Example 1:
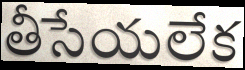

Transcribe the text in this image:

తీసేయలేక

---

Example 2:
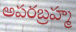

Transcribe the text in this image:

అపరబ్రహ్మ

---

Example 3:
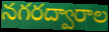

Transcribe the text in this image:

నగరద్వారాల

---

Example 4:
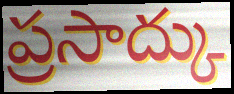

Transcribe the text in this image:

ప్రసాద్కు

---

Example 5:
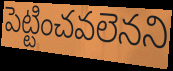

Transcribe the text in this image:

పెట్టించవలెనని